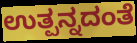
ಉತ್ಪನ್ನದಂತೆ